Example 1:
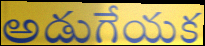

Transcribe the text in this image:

అడుగేయక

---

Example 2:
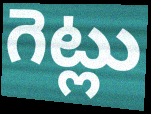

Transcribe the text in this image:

గెట్లు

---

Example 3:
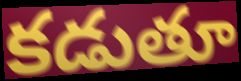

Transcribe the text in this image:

కడుతూ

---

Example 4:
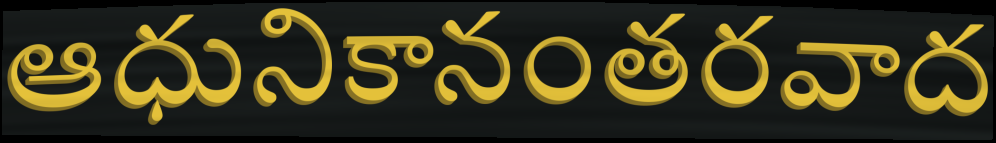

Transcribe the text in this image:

ఆధునికానంతరవాద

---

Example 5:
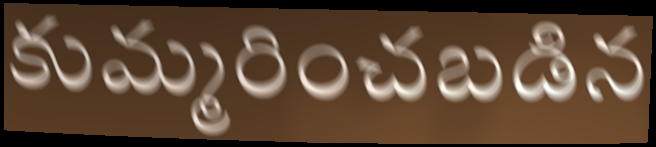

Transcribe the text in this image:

కుమ్మరించబడిన